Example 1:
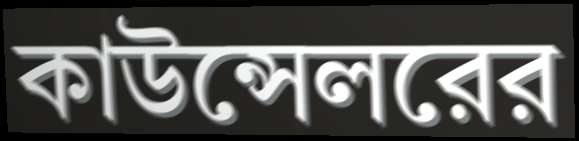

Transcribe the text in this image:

কাউন্সেলরের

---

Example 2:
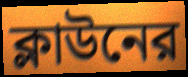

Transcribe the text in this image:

ক্লাউনের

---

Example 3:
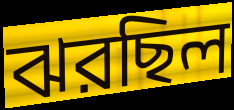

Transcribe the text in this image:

ঝরছিল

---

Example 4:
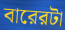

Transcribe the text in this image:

বারেরটা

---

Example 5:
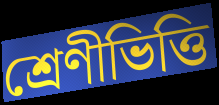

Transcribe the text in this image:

শ্রেণীভিত্তি